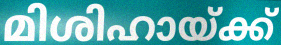
മിശിഹായ്ക്ക്